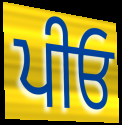
ਪੀਓ